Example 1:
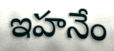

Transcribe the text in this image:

ఇహనేం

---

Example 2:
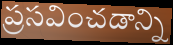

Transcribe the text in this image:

ప్రసవించడాన్ని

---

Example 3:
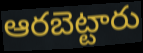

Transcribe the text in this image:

ఆరబెట్టారు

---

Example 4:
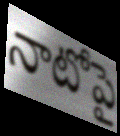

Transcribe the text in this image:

నాటోపై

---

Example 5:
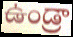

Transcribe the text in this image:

ఉండ్రా